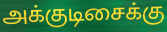
அக்குடிசைக்கு